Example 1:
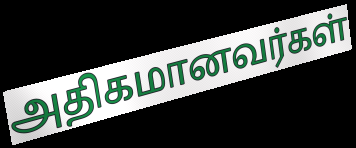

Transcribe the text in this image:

அதிகமானவர்கள்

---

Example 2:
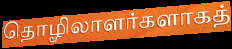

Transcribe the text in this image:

தொழிலாளர்களாகத்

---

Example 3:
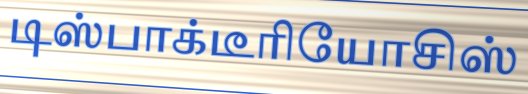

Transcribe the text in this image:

டிஸ்பாக்டீரியோசிஸ்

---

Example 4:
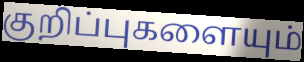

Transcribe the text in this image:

குறிப்புகளையும்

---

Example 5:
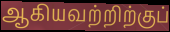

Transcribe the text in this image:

ஆகியவற்றிற்குப்